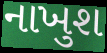
નાખુશ